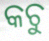
କଚୁ